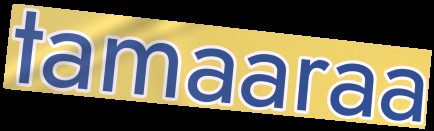
tamaaraa